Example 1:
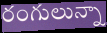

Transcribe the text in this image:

రంగులున్నా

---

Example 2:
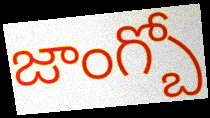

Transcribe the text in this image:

జాంగ్బో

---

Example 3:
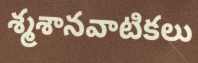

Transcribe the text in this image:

శ్మశానవాటికలు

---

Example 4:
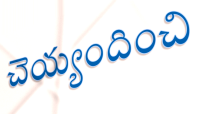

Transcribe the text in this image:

చెయ్యందించి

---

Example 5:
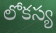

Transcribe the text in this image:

లోకస్య